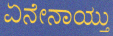
ಏನೇನಾಯ್ತು